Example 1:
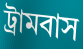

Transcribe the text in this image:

ট্রামবাস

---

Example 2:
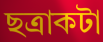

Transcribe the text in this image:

ছত্রাকটা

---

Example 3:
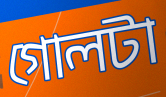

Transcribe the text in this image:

গোলটা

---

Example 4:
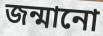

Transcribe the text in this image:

জন্মানো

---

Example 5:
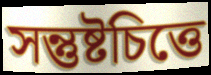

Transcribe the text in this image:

সন্তুষ্টচিত্তে